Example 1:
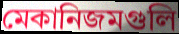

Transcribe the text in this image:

মেকানিজমগুলি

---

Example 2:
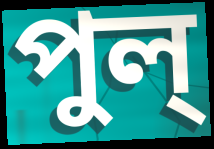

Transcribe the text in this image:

পুল্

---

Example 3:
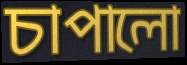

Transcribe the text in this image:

চাপালো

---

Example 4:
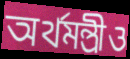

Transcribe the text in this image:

অর্থমন্ত্রীও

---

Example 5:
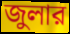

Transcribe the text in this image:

জুলার